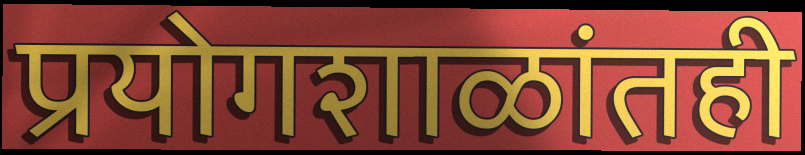
प्रयोगशाळांतही